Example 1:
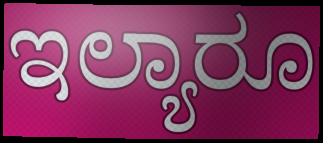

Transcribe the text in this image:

ಇಲ್ಯಾರೂ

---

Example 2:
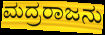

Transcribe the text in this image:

ಮದ್ರರಾಜನು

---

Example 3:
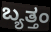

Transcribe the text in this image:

ಬ್ಯತ್ತಂ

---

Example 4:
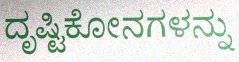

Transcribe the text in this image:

ದೃಷ್ಟಿಕೋನಗಳನ್ನು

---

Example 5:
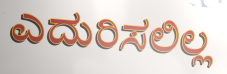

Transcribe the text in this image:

ಎದುರಿಸಲಿಲ್ಲ